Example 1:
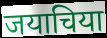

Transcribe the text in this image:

जयाचिया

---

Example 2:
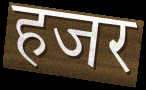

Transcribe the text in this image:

हजर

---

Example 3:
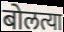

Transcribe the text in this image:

बोलत्या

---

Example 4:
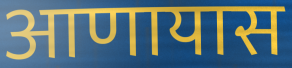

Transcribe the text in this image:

आणायास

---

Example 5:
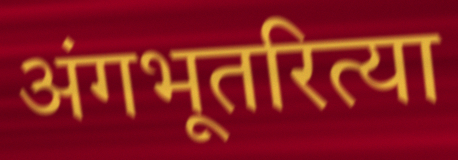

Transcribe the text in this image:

अंगभूतरित्या